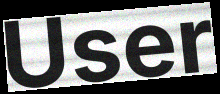
User